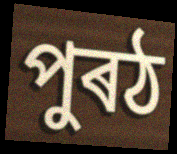
পুৰঠ